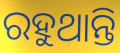
ରହୁଥାନ୍ତି